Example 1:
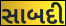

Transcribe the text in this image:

સાબદી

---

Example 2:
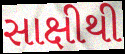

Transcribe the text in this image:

સાક્ષીથી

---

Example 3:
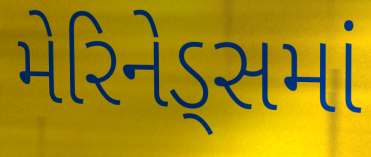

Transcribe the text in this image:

મેરિનેડ્સમાં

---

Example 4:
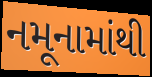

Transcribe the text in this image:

નમૂનામાંથી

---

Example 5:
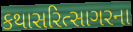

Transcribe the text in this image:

કથાસરિત્સાગરના